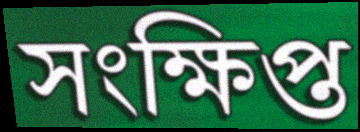
সংক্ষিপ্ত